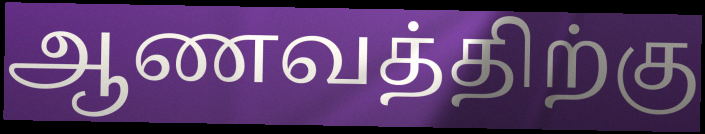
ஆணவத்திற்கு